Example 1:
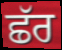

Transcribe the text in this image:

ਛੱਰ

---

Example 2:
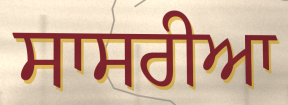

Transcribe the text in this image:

ਸਾਸਰੀਆ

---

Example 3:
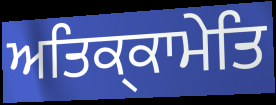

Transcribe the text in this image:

ਅਤਿਕ੍ਕਾਮੇਤਿ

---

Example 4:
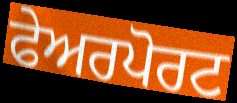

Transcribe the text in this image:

ਫੇਅਰਪੋਰਟ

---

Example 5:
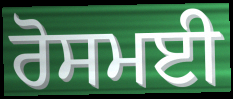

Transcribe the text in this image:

ਰੋਸਮਈ